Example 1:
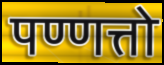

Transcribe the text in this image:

पण्णत्तो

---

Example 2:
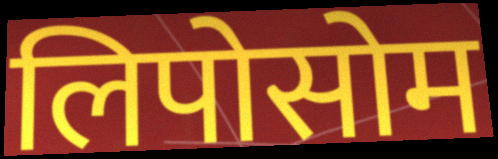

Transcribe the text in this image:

लिपोसोम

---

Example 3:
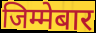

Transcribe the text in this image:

जिम्मेबार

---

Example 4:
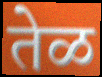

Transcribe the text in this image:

तेळ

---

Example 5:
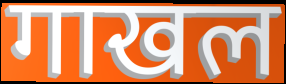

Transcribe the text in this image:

गाखल